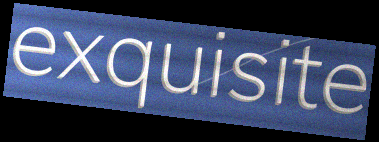
exquisite